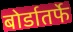
बोर्डातर्फे